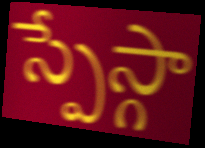
స్పేస్గా